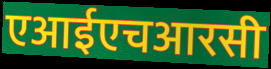
एआईएचआरसी